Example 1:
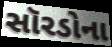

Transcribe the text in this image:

સૉરડોના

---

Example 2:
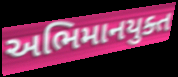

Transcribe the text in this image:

અભિમાનયુક્ત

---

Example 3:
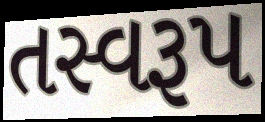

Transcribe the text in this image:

તસ્વરૂપ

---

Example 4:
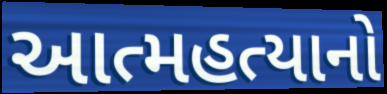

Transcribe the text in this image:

આત્મહત્યાનો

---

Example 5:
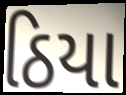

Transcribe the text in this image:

ઠિયા